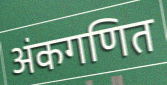
अंकगणित